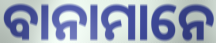
ବାନାମାନେ